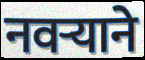
नवर्‍याने